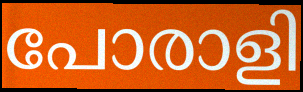
പോരാളി